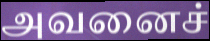
அவனைச்